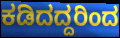
ಕಡಿದದ್ದರಿಂದ